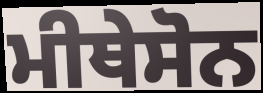
ਮੀਥੇਸੋਨ